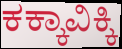
ಕಕ್ಕಾವಿಕ್ಕಿ